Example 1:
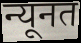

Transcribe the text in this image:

न्यूनत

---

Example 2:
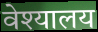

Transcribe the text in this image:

वेश्यालय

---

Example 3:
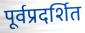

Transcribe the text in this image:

पूर्वप्रदर्शित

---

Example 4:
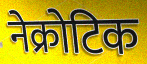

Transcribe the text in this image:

नेक्रोटिक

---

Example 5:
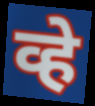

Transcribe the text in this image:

व्हे